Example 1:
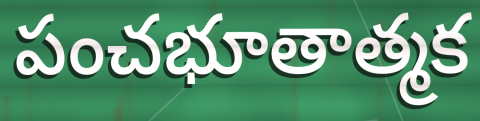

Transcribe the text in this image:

పంచభూతాత్మక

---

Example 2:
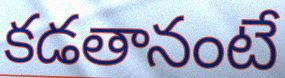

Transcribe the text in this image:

కడతానంటే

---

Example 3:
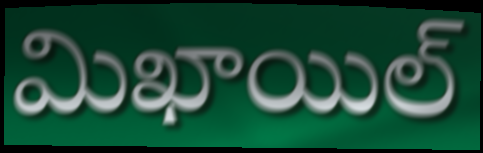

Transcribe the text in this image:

మిఖాయిల్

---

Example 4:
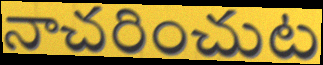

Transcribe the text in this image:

నాచరించుట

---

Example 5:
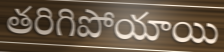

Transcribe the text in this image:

తరిగిపోయాయి